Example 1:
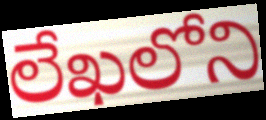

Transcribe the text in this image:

లేఖలోని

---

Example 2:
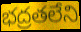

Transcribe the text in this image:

భద్రతలేని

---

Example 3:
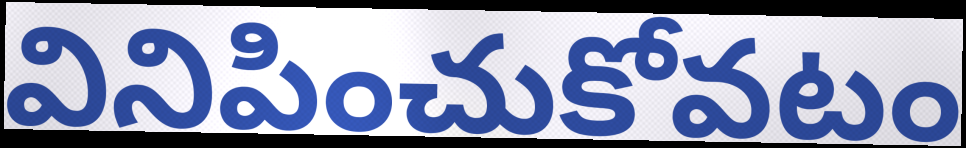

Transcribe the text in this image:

వినిపించుకోవటం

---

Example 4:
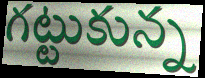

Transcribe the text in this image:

గట్టుకున్న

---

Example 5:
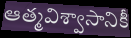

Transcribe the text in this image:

ఆత్మవిశ్వాసానికీ